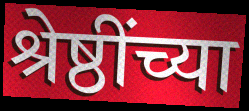
श्रेष्ठींच्या